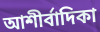
আশীর্বাদিকা